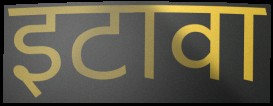
इटावा